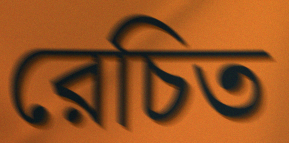
রেচিত